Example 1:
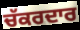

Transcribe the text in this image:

ਚੱਕਰਦਾਰ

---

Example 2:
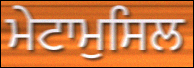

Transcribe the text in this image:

ਮੇਟਾਮੁਸਿਲ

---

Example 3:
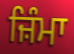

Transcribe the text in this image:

ਜ਼ਿੰਮਾ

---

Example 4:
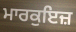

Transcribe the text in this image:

ਮਾਰਕੁਇਜ਼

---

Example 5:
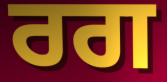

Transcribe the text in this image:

ਰਗ